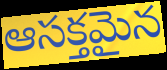
ఆసక్తమైన